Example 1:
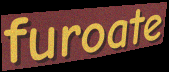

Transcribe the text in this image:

furoate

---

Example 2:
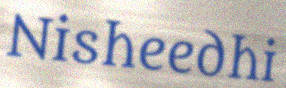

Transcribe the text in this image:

Nisheedhi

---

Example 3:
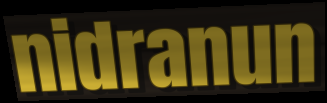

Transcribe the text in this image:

nidranun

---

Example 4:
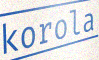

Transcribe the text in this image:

korola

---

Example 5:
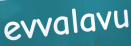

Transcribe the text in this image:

evvalavu